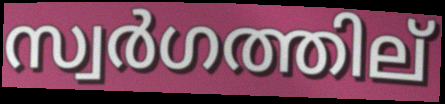
സ്വർഗത്തില്